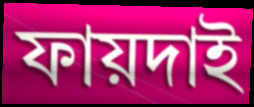
ফায়দাই